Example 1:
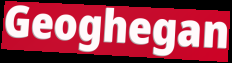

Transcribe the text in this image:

Geoghegan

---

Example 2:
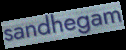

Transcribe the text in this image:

sandhegam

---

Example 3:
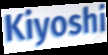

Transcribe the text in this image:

Kiyoshi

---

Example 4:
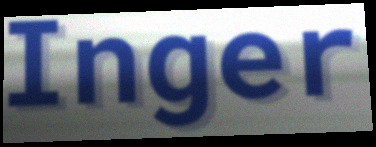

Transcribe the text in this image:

Inger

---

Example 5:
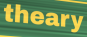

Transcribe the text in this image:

theary